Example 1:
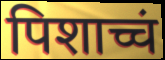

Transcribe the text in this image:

पिशाच्चं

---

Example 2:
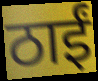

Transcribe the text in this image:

ठाईं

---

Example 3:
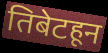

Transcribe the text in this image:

तिबेटहून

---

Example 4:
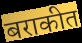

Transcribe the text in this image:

बराकीत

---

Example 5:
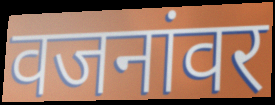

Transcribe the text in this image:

वजनांवर